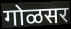
गोळसर